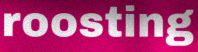
roosting